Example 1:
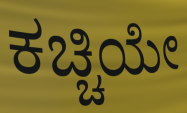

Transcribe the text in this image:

ಕಚ್ಚಿಯೇ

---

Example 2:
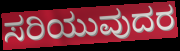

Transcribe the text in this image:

ಸರಿಯುವುದರ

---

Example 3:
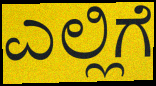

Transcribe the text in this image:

ಎಲ್ಲಿಗೆ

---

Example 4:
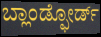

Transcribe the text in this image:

ಬ್ಲಾಂಡ್ಫೋರ್ಡ್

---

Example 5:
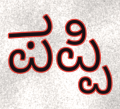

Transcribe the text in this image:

ಪಪ್ಪಿ